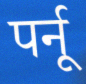
पर्नू